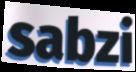
sabzi